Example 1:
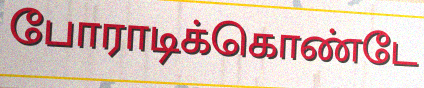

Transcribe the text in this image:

போராடிக்கொண்டே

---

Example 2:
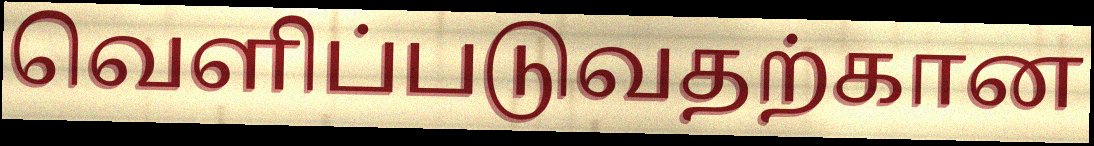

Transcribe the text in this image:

வெளிப்படுவதற்கான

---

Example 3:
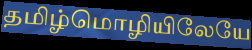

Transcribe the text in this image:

தமிழ்மொழியிலேயே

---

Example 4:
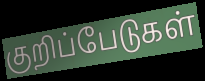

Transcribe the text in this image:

குறிப்பேடுகள்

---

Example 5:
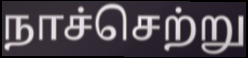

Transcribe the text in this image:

நாச்செற்று